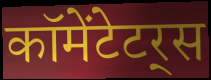
कॉमेंटेटर्स